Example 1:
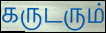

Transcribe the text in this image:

கருடரும்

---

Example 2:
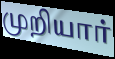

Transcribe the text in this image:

முறியார்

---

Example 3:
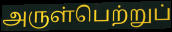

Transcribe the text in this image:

அருள்பெற்றுப்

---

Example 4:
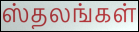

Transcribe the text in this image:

ஸ்தலங்கள்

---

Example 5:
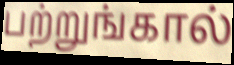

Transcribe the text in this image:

பற்றுங்கால்